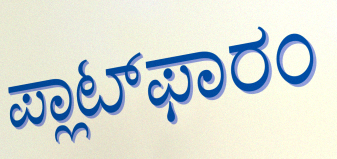
ಪ್ಲಾಟ್‌ಫಾರಂ